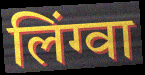
लिंग्वा